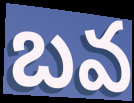
బవ